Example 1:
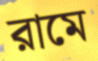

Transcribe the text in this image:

রামে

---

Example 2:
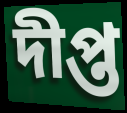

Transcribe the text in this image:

দীপ্ত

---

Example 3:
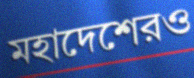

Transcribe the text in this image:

মহাদেশেরও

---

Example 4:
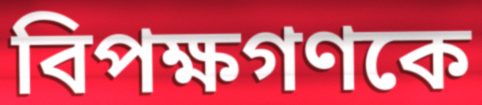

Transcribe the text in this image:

বিপক্ষগণকে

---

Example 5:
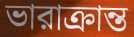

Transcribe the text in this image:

ভারাক্রান্ত